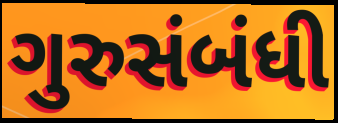
ગુરુસંબંધી